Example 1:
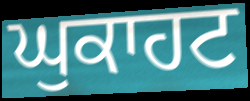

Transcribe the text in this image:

ਘੁਕਾਹਟ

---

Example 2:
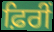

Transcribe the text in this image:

ਫ਼ਿਰੀਂ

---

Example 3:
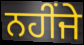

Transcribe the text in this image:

ਨਹੀਂਜੇ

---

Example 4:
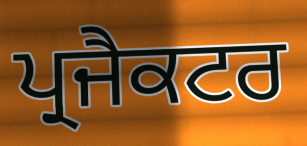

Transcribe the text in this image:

ਪ੍ਰਜੈਕਟਰ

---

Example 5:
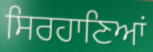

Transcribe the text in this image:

ਸਿਰਹਾਣਿਆਂ